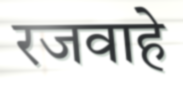
रजवाहे